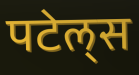
पटेल्स